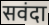
सवंदा